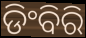
ଡିଂବିରି